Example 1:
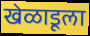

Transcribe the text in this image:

खेळाडूला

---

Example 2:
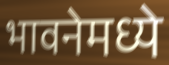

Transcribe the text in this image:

भावनेमध्ये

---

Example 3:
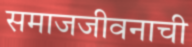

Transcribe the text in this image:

समाजजीवनाची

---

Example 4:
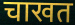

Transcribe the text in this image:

चाखत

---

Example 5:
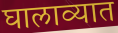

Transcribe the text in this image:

घालाव्यात